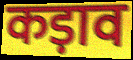
कड़ाव